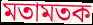
মতামতক